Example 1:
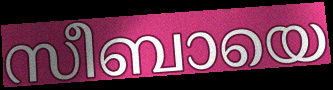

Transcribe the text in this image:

സീബായെ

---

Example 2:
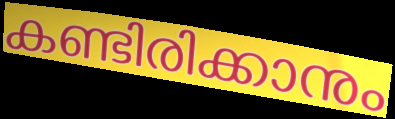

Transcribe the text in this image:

കണ്ടിരിക്കാനും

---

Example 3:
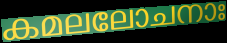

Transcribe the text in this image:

കമലലോചനാഃ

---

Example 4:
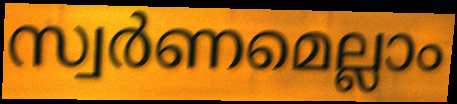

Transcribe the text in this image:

സ്വർണമെല്ലാം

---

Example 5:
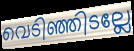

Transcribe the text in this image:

വെടിഞ്ഞിടല്ലേ